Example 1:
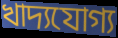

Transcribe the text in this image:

খাদ্যযোগ্য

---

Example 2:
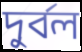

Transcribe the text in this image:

দুর্বল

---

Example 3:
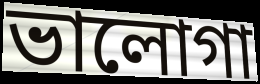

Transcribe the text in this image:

ভালোগা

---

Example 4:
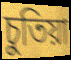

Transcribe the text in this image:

চুতিয়া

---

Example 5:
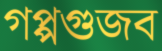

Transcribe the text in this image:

গপ্পগুজব